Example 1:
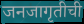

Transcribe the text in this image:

जनजागृतीची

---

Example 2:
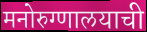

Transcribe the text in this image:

मनोरुग्णालयाची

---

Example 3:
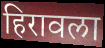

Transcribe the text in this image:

हिरावला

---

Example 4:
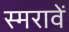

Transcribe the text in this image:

स्मरावें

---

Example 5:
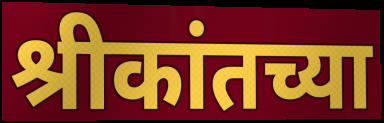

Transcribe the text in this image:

श्रीकांतच्या